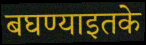
बघण्याइतके